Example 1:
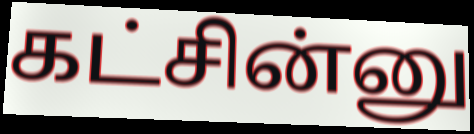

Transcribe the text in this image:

கட்சின்னு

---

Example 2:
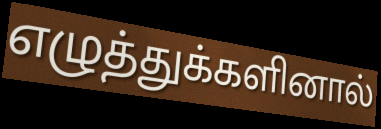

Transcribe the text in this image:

எழுத்துக்களினால்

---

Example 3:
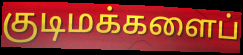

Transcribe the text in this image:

குடிமக்களைப்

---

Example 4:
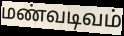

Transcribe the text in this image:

மண்வடிவம்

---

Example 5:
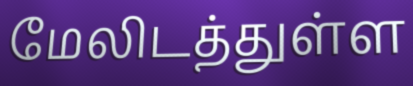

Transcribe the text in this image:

மேலிடத்துள்ள